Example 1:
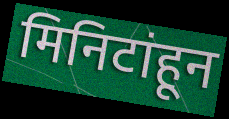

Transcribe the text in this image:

मिनिटांहून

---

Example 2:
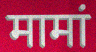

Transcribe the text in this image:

मामां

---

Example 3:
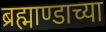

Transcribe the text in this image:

ब्रह्माण्डाच्या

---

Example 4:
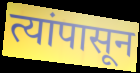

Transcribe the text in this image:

त्यांपासून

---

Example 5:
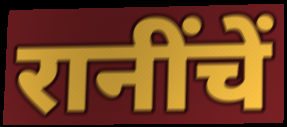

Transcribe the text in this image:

रानींचें